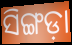
ସିଙ୍ଗଡ଼ା